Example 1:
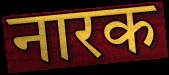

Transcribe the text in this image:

नारक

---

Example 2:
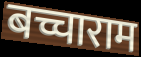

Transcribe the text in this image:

बच्चाराम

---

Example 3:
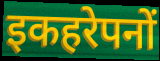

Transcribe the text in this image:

इकहरेपनों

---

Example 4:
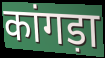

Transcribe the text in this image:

कांगड़ा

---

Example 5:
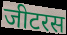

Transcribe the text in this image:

जीटरस